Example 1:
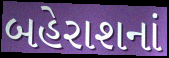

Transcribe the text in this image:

બહેરાશનાં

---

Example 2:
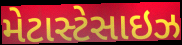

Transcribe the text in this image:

મેટાસ્ટેસાઇઝ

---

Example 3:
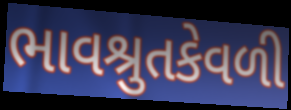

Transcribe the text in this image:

ભાવશ્રુતકેવળી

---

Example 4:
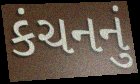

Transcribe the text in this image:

કંચનનું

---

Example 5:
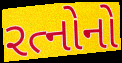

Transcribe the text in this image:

રત્નોનો